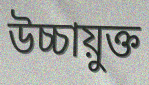
উচ্চায়ুক্ত